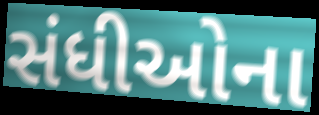
સંધીઓના